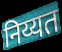
निय्यत